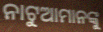
ନାଟୁଆମାନଙ୍କୁ